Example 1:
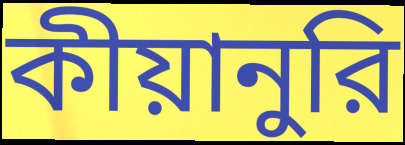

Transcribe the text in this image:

কীয়ানুরি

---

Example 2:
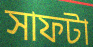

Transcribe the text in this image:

সাফটা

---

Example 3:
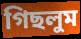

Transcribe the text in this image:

গিছলুম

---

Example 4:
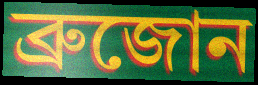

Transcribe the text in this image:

ব্রুজোন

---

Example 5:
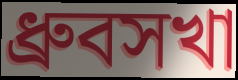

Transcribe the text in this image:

ধ্রুবসখা